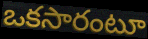
ఒకసారంటూ